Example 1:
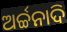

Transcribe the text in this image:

ଅର୍ଚ୍ଚନାଦି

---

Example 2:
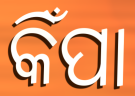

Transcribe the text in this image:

କିଁପା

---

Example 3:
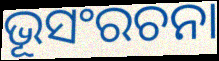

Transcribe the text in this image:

ଭୂସଂରଚନା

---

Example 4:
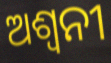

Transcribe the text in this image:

ଅଶ୍ୱନୀ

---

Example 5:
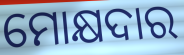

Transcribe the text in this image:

ମୋକ୍ଷଦାର